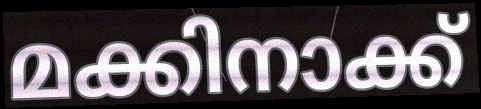
മക്കിനാക്ക്